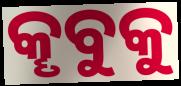
କୄବୁକୁ